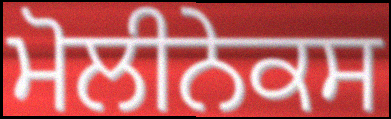
ਮੋਲੀਨੇਕਸ